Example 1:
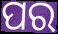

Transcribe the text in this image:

ପର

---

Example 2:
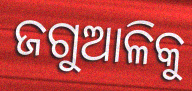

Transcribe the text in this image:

ଜଗୁଆଳିକୁ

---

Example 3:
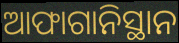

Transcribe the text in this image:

ଆଫାଗାନିସ୍ଥାନ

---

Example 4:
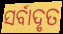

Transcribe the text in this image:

ସର୍ବାଦୃତ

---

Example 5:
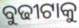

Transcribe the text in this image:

ବୁଢୀଟାକୁ